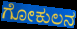
ಗೋಕುಲನ